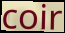
coir